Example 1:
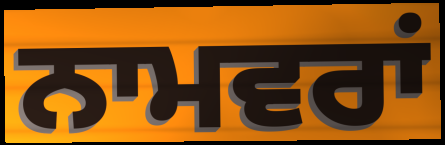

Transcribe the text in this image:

ਨਾਮਵਰਾਂ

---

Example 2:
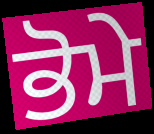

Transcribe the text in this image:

ਭੋਮੇ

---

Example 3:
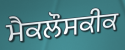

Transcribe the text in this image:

ਮੈਕਲੌਸਕੀਕ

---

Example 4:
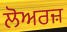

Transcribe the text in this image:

ਲੋਅਰਜ਼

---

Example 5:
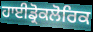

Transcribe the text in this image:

ਹਾਈਡ੍ਰੋਕਲੋਰਿਕ